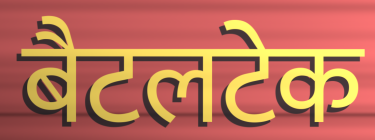
बैटलटेक